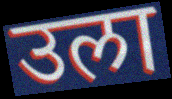
उला